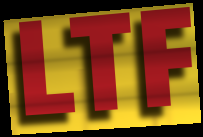
LTF